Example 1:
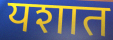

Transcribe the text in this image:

यशात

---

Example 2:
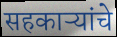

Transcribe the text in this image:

सहकाऱ्यांचे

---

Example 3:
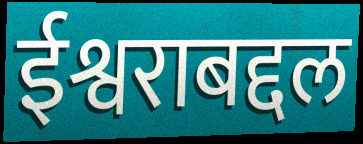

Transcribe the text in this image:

ईश्वराबद्दल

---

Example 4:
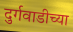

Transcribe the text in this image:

दुर्गवाडीच्या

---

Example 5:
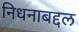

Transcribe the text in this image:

निधनाबद्दल